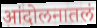
आंदोलनातलं